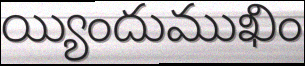
య్యిందుముఖిం